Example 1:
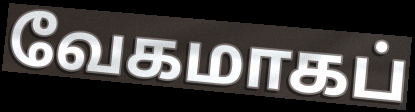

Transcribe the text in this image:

வேகமாகப்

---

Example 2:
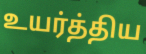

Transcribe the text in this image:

உயர்த்திய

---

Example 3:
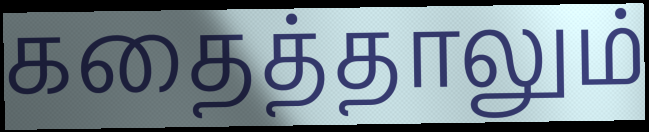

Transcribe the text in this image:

கதைத்தாலும்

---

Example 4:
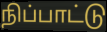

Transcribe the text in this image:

நிப்பாட்டு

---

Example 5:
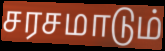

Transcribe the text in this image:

சரசமாடும்